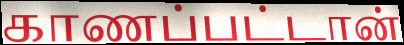
காணப்பட்டான்